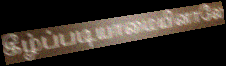
கீழ்ப்படியாமையினாலே